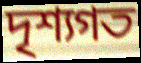
দৃশ্যগত